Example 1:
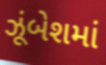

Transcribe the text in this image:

ઝૂંબેશમાં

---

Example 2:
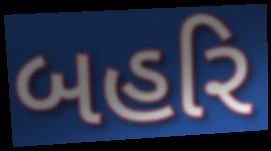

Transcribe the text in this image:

બહરિ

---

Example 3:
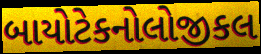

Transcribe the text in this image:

બાયોટેકનોલોજીકલ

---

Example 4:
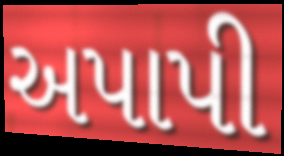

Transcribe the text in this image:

અપાપી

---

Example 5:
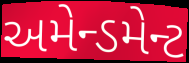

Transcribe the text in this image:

અમેન્ડમેન્ટ